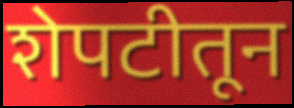
शेपटीतून